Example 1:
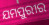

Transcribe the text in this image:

ଯମପୁରୀର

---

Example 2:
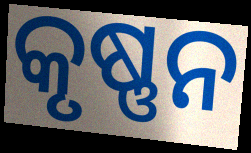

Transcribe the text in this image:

କୃଷ୍ଣନ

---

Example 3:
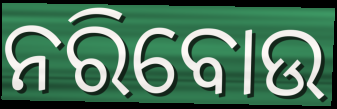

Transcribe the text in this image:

ନରିବୋଉ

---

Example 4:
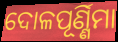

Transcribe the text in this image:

ଦୋଳପୂର୍ଣ୍ଣିମା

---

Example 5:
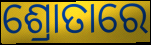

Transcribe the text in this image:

ଶ୍ରୋତାରେ